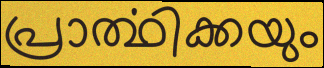
പ്രാൎത്ഥിക്കയും